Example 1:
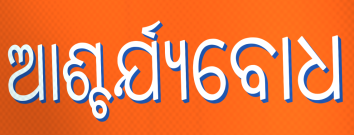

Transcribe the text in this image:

ଆଶ୍ଚର୍ଯ୍ୟବୋଧ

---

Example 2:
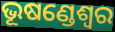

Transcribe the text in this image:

ଭୂଷଣ୍ଡେଶ୍ଵର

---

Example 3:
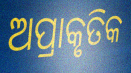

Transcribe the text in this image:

ଅପ୍ରାକୃତିକ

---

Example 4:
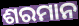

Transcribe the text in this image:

ଶରମାନ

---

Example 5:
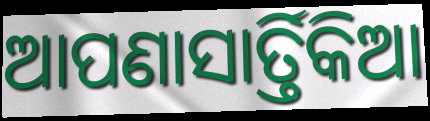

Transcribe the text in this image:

ଆପଣାସାର୍ତ୍ତିକିଆ